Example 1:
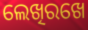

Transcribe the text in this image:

ଲେଖିରଖେ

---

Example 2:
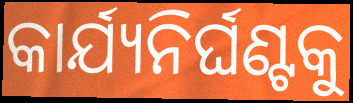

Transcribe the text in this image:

କାର୍ଯ୍ୟନିର୍ଘଣ୍ଟକୁ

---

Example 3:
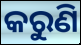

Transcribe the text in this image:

କରୁଣି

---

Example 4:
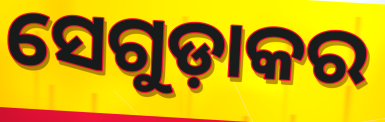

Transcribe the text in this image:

ସେଗୁଡ଼ାକର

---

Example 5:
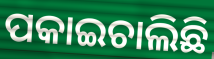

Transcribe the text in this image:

ପକାଇଚାଲିଛି